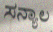
ಸನ್ಯಾಲ